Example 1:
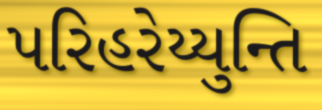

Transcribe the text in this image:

પરિહરેય્યુન્તિ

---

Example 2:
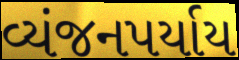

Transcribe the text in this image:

વ્યંજનપર્યાય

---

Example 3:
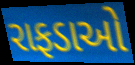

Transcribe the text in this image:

રાફડાઓ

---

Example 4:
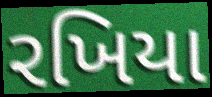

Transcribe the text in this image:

રખિયા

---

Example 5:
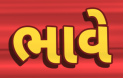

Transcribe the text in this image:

ભાવે